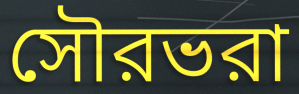
সৌরভরা